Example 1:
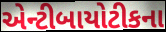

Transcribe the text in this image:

એન્ટીબાયોટીકના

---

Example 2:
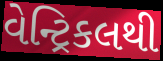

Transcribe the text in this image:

વેન્ટ્રિકલથી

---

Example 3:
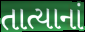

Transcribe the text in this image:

તાત્યાનાં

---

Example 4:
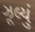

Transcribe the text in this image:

ઝૂલ્યું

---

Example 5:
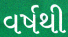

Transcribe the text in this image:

વર્ષથી